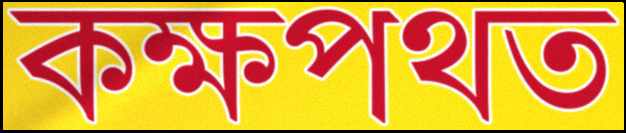
কক্ষপথত